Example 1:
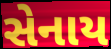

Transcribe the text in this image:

સેનાય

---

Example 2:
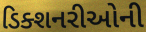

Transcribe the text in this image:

ડિક્શનરીઓની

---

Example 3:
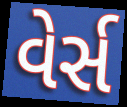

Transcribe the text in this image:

વેર્સ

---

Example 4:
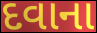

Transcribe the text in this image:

દવાના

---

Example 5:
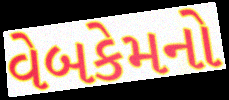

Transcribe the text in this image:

વેબકેમનો